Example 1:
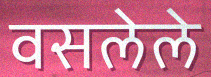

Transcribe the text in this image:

वसलेले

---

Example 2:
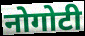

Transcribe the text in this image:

नोगोटी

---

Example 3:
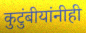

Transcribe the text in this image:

कुटुंबीयांनीही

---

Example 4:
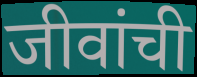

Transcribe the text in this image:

जीवांची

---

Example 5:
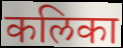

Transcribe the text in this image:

कलिका